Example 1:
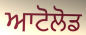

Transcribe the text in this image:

ਆਟੋਲੋਡ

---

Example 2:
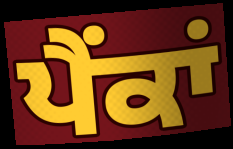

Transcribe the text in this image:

ਪੈਂਕਾਂ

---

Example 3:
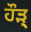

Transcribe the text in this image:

ਹੌੜ੍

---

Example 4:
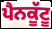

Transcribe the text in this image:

ਪੈਨਕੂੱਟੂ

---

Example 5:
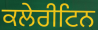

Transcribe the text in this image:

ਕਲੇਰੀਟਿਨ